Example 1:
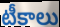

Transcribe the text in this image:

టీకాలు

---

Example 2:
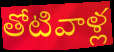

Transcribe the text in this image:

తోటివాళ్ల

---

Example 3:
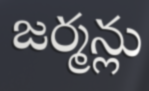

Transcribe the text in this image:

జర్మన్లు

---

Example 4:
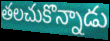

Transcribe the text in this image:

తలచుకొన్నాడు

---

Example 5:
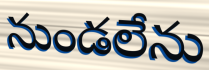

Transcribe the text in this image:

నుండలేను